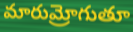
మారుమ్రోగుతూ